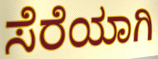
ಸೆರೆಯಾಗಿ